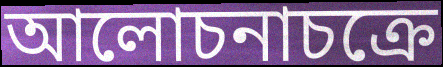
আলোচনাচক্রে